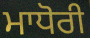
ਮਾਧੋਰੀ